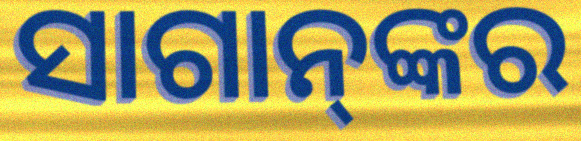
ସାଗାନ୍‌ଙ୍କର